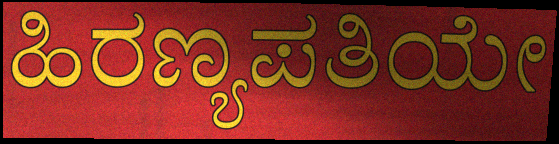
ಹಿರಣ್ಯಪತಿಯೇ